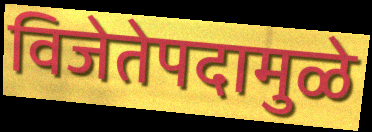
विजेतेपदामुळे